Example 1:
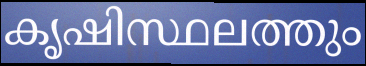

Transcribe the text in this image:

കൃഷിസ്ഥലത്തും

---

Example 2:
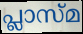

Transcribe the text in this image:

പ്ലാസ്മ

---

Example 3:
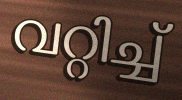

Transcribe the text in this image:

വറ്റിച്ച്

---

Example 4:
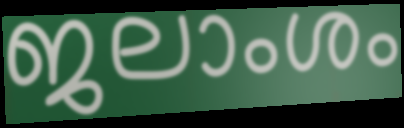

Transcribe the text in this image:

ജലാംശം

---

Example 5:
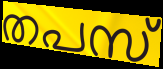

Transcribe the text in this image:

തപസ്